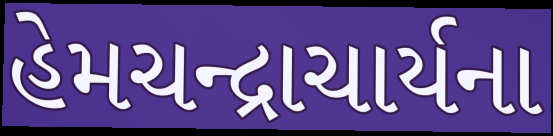
હેમચન્દ્રાચાર્યના